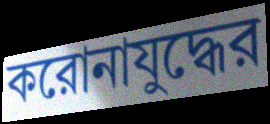
করোনাযুদ্ধের